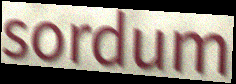
sordum